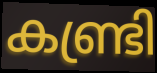
കണ്ട്രി